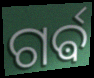
ଗର୍ଵ